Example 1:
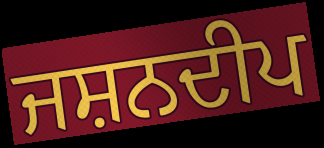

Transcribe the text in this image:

ਜਸ਼ਨਦੀਪ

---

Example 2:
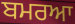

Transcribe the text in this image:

ਬਮਰਆ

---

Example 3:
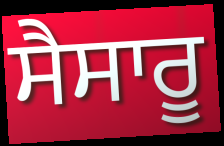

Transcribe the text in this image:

ਸੈਸਾਰੂ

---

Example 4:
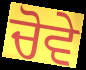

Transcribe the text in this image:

ਚੋਵੇ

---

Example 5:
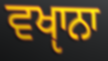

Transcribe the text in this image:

ਵਖੵਾਨਾ